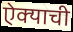
ऐक्याची